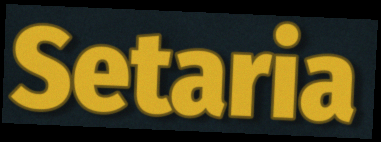
Setaria